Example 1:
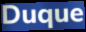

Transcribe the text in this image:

Duque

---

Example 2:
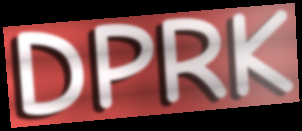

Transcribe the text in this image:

DPRK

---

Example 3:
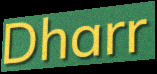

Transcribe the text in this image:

Dharr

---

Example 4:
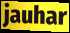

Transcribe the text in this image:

jauhar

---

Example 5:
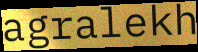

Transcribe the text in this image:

agralekh